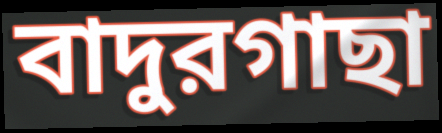
বাদুরগাছা